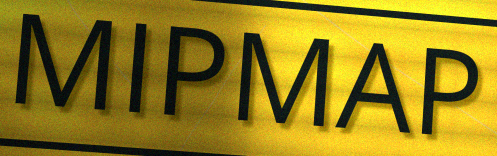
MIPMAP